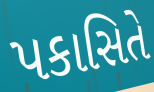
પકાસિતે